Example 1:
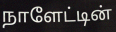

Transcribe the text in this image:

நாளேட்டின்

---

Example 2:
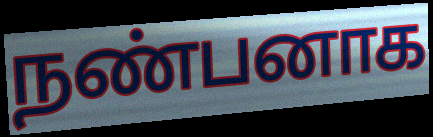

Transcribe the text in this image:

நண்பனாக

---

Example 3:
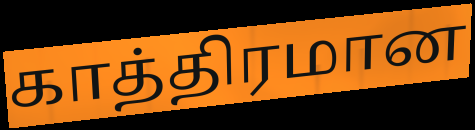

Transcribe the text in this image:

காத்திரமான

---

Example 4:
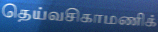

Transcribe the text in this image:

தெய்வசிகாமணிக்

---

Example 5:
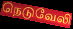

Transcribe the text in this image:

நெடுவேலி